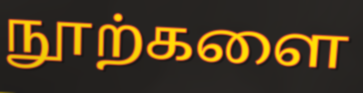
நூற்களை